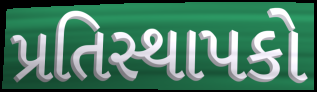
પ્રતિસ્થાપકો